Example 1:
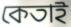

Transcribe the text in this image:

কেতাই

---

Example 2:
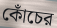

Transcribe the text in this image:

কোঁচের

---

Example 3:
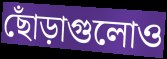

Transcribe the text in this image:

ছোঁড়াগুলোও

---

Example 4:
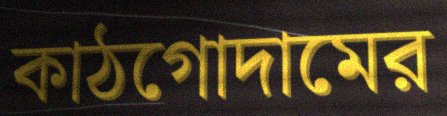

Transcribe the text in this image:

কাঠগোদামের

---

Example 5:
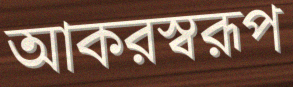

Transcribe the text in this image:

আকরস্বরূপ